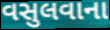
વસુલવાના